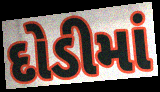
દોડીમાં